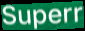
Superr